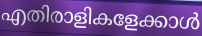
എതിരാളികളേക്കാൾ